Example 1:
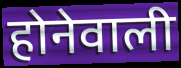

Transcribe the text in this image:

होनेवाली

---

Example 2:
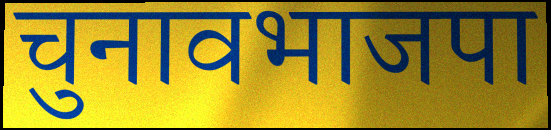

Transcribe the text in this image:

चुनावभाजपा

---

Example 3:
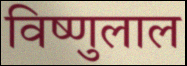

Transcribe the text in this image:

विष्णुलाल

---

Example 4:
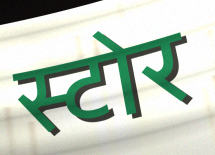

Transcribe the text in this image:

स्टोर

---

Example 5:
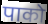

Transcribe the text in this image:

पाको